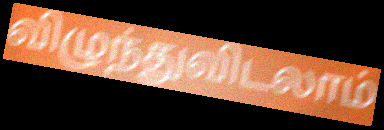
விழுந்துவிடலாம்